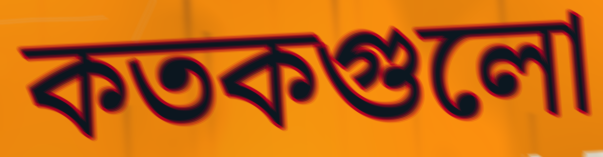
কতকগুলো